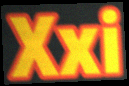
Xxi